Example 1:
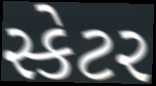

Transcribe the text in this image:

સ્કેટર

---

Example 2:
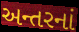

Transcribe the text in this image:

અન્તરનાં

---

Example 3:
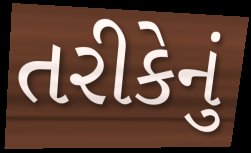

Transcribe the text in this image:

તરીકેનું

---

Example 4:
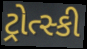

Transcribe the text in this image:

ટ્રોત્સ્કી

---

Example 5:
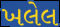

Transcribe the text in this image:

ખલેલ